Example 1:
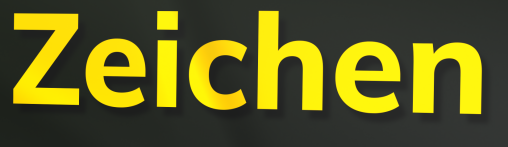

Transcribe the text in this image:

Zeichen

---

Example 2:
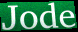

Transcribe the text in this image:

Jode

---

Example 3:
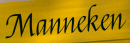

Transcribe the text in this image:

Manneken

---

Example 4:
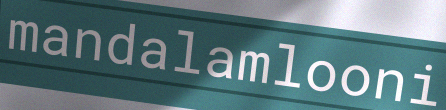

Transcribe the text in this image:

mandalamlooni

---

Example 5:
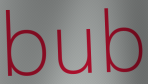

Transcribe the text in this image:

bub